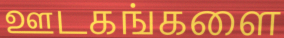
ஊடகங்களை